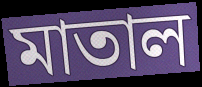
মাতাল